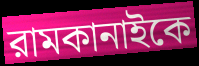
রামকানাইকে